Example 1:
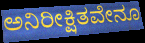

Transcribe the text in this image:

ಅನಿರೀಕ್ಷಿತವೇನೂ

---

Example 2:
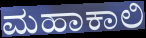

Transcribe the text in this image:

ಮಹಾಕಾಲಿ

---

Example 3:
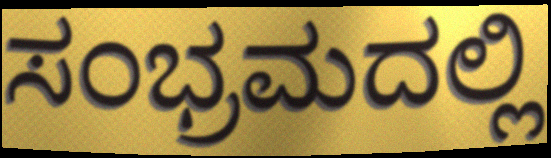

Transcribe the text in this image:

ಸಂಭ್ರಮದಲ್ಲಿ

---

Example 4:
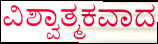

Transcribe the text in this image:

ವಿಶ್ವಾತ್ಮಕವಾದ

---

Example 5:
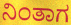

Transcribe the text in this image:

ನಿಂತಾಗ